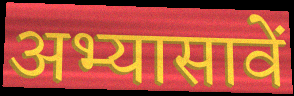
अभ्यासावें